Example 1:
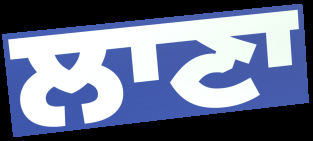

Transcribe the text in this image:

ਲਾਣਾ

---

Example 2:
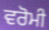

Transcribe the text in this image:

ਵਰੋਮੀ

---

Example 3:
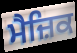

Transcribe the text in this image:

ਮੈਜ਼ਿਕ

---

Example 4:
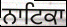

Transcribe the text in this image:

ਨਾਟਿਕਾ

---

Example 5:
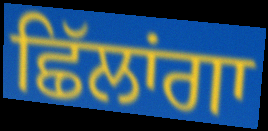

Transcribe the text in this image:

ਛਿੱਲਾਂਗਾ